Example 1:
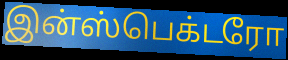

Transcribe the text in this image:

இன்ஸ்பெக்டரோ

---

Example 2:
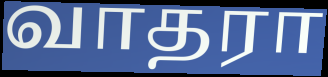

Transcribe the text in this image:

வாதரா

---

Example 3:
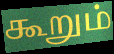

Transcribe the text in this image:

கூறும்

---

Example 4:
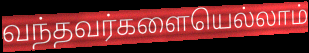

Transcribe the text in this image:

வந்தவர்களையெல்லாம்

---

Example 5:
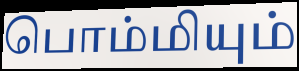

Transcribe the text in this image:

பொம்மியும்